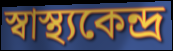
স্বাস্থ্যকেন্দ্ৰ